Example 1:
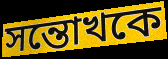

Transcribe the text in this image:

সন্তোখকে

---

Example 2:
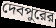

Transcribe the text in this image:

দেবপুরের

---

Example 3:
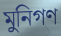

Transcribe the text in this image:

মুনিগণ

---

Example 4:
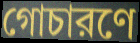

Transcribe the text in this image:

গোচারণে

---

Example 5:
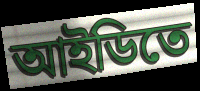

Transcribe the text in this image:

আইডিতে